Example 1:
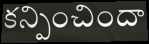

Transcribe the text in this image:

కన్పించిందా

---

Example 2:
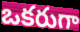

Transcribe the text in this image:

ఒకరుగా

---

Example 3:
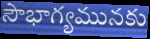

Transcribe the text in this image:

సౌభాగ్యమునకు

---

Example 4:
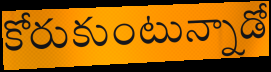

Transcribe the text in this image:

కోరుకుంటున్నాడో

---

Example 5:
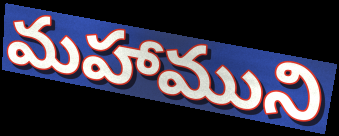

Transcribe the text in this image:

మహాముని